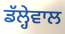
ਡੱਲ੍ਹੇਵਾਲ